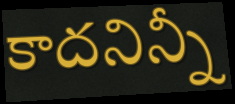
కాదనిన్నీ